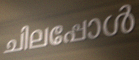
ചിലപ്പോൾ